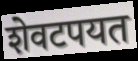
शेवटपयत